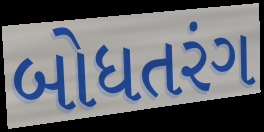
બોધતરંગ